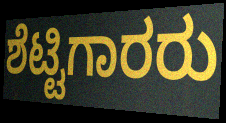
ಶೆಟ್ಟಿಗಾರರು